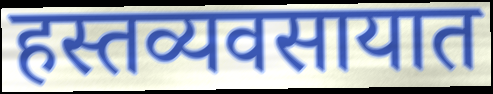
हस्तव्यवसायात